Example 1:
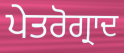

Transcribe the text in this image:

ਪੇਤਰੋਗ੍ਰਾਦ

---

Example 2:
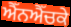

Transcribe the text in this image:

ਐੱਨਐੱਚਕੇ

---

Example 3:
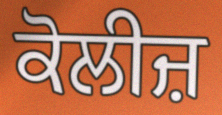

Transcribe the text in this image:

ਕੋਲੀਜ਼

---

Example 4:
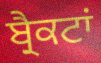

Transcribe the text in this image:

ਬ੍ਰੈਕਟਾਂ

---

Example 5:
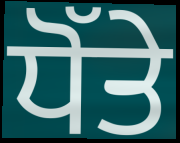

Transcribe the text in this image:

ਧੋੱਤੇ